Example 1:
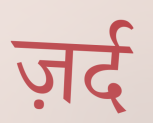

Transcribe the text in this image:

ज़र्द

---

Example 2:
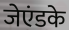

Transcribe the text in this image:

जेएंडके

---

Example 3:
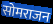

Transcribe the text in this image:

सोमराजन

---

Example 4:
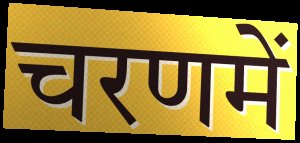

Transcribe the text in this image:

चरणमें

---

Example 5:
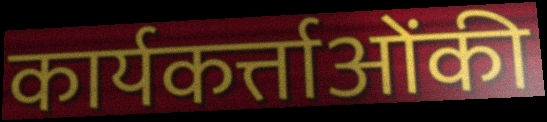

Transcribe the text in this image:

कार्यकर्त्ताओंकी